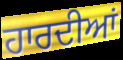
ਹਾਰਦੀਆਂ